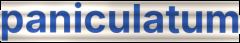
paniculatum